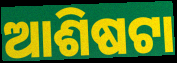
ଆଶିଷଟା